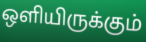
ஒளியிருக்கும்